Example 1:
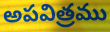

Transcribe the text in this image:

అపవిత్రము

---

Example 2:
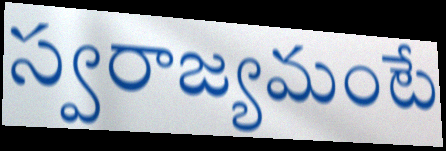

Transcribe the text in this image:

స్వరాజ్యమంటే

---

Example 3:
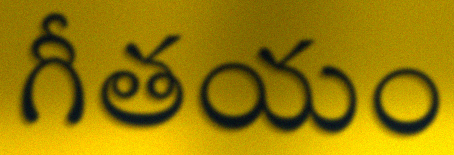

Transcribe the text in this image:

గీతయం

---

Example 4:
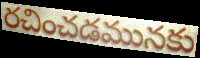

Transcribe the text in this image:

రచించడమునకు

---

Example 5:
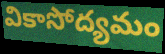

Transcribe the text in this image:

వికాసోద్యమం